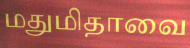
மதுமிதாவை